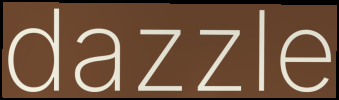
dazzle